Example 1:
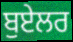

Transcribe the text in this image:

ਬੁਏਲਰ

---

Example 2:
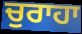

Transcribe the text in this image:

ਚੁਰਾਹਾ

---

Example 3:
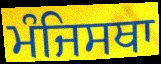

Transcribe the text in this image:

ਮੰਜਿਸਥਾ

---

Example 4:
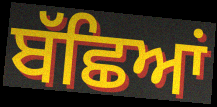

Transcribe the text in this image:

ਬੱਛਿਆਂ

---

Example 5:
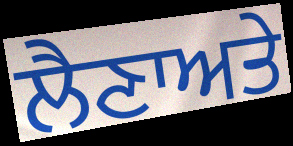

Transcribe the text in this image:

ਲੈਣਾਅਤੇ